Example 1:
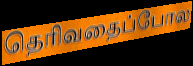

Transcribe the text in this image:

தெரிவதைப்போல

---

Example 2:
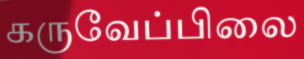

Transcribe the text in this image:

கருவேப்பிலை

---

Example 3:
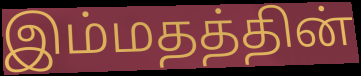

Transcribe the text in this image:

இம்மதத்தின்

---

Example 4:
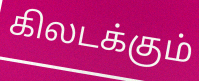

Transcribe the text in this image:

கிலடக்கும்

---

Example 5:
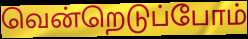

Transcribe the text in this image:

வென்றெடுப்போம்